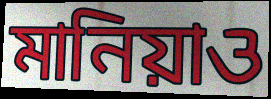
মানিয়াও